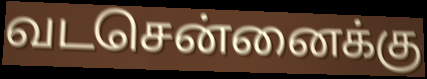
வடசென்னைக்கு